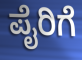
ಪೈರಿಗೆ